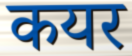
कयर